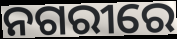
ନଗରୀରେ